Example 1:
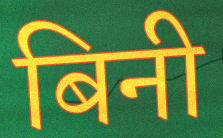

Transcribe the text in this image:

बिनी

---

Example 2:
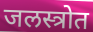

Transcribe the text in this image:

जलस्त्रोत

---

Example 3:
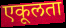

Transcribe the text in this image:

एकूलता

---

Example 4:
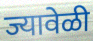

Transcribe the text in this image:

ज्यावेळी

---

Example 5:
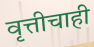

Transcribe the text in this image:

वृत्तीचाही